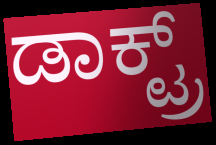
ಡಾಕ್ಟ್ರ್